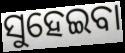
ସୁହେଇବା